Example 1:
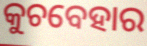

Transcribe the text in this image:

କୁଚବେହାର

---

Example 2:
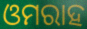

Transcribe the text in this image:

ଓମରାହ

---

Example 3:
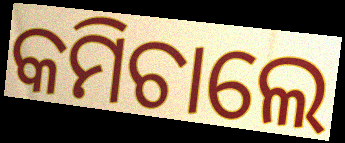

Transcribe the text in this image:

କମିଚାଲେ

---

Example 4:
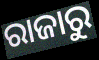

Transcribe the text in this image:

ରାଜାରୁ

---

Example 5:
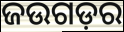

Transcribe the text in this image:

ଜଉଗଡ଼ର